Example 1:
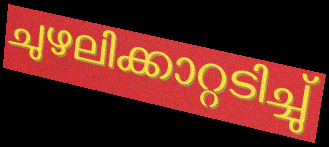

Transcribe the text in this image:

ചുഴലിക്കാറ്റടിച്ചു്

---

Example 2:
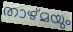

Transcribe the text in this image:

താഴ്മയും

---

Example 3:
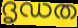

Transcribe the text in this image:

ദൃഡത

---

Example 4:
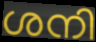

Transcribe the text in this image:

ശനി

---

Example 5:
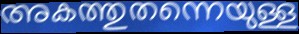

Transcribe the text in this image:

അകത്തുതന്നെയുള്ള